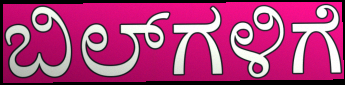
ಬಿಲ್‌ಗಳಿಗೆ